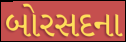
બોરસદના